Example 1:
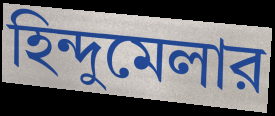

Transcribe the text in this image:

হিন্দুমেলার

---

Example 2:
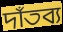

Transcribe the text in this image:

দাঁতব্য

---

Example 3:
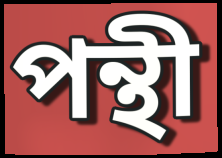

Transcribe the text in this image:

পন্থী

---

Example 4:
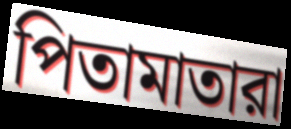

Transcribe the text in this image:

পিতামাতারা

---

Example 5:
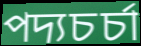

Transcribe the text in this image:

পদ্যচর্চা